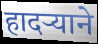
हादऱ्याने